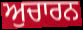
ਅੁਚਾਰਨ